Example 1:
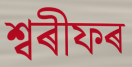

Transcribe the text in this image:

শ্বৰীফৰ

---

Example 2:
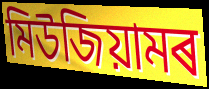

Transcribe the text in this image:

মিউজিয়ামৰ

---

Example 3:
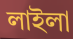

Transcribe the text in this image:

লাইলা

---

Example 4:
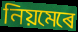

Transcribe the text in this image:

নিয়মেৰে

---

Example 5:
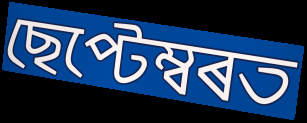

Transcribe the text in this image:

ছেপ্টেম্বৰত